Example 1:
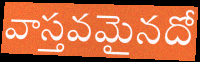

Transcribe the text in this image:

వాస్తవమైనదో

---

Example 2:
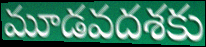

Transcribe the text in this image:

మూడవదశకు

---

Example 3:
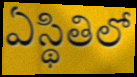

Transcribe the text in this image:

ఏస్థితిలో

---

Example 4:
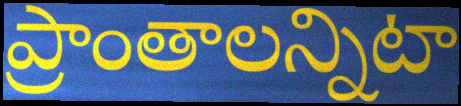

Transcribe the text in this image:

ప్రాంతాలన్నిటా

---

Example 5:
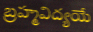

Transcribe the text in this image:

బ్రహ్మవిద్యయే